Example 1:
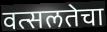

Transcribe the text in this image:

वत्सलतेचा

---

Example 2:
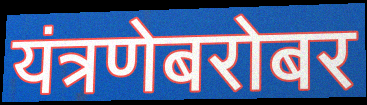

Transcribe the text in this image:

यंत्रणेबरोबर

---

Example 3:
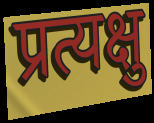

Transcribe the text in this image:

प्रत्यक्षु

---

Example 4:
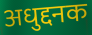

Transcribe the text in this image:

अधुद्दनक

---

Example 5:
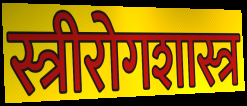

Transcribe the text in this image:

स्त्रीरोगशास्त्र